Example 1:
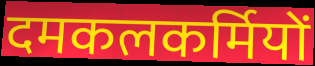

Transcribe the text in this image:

दमकलकर्मियों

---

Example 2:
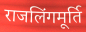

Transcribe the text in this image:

राजलिंगमूर्ति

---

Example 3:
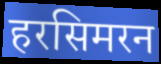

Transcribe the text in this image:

हरसिमरन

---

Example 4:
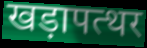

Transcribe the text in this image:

खड़ापत्थर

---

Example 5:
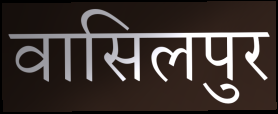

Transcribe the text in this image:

वासिलपुर